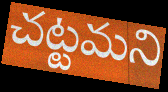
చట్టమని